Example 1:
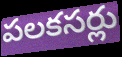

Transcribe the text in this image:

పలకసర్లు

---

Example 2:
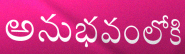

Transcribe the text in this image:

అనుభవంలోకి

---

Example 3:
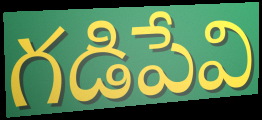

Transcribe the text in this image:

గడిపేవి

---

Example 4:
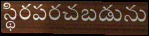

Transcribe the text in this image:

స్థిరపరచబడును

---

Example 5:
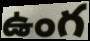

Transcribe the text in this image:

ఉంగ